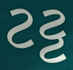
ટટ્ટ